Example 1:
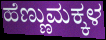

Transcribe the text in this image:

ಹೆಣ್ಣುಮಕ್ಕಳ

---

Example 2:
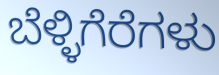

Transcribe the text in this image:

ಬೆಳ್ಳಿಗೆರೆಗಳು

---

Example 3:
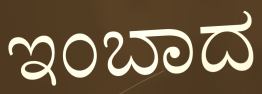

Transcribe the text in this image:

ಇಂಬಾದ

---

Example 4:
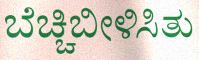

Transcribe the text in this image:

ಬೆಚ್ಚಿಬೀಳಿಸಿತು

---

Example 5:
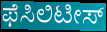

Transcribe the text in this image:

ಫೆಸಿಲಿಟೀಸ್